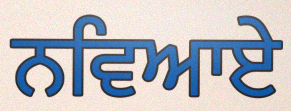
ਨਵਿਆਏ